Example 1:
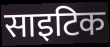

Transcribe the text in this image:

साइटिक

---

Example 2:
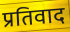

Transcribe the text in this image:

प्रतिवाद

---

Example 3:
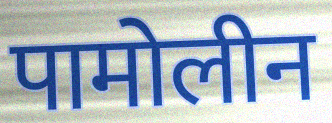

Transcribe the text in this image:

पामोलीन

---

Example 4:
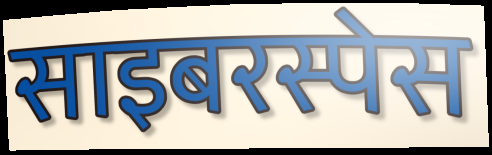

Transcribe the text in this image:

साइबरस्पेस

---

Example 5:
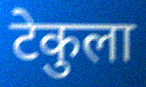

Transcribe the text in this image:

टेकुला